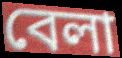
বেলা